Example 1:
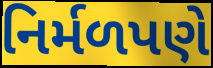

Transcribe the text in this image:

નિર્મળપણે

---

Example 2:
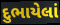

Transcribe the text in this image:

દુભાયેલાં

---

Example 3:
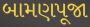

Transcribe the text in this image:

બામણપૂજા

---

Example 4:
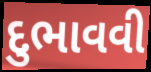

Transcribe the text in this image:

દુભાવવી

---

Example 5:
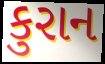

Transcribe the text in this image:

કુરાન